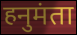
हनुमंता